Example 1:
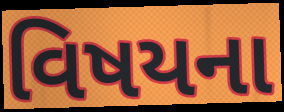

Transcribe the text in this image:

વિષયના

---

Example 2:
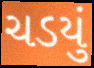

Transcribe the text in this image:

ચડયું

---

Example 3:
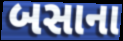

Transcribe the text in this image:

બસાના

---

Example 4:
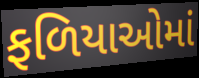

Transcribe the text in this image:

ફળિયાઓમાં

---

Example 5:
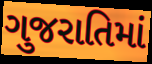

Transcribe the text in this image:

ગુજરાતિમાં